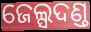
ଜେଲ୍ସଦଣ୍ଡ